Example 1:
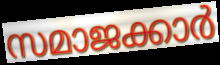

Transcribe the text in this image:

സമാജക്കാർ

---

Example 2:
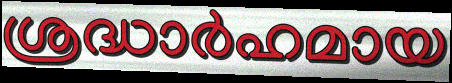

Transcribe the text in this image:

ശ്രദ്ധാർഹമായ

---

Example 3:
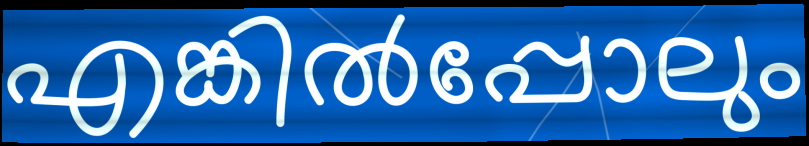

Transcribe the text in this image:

എങ്കിൽപ്പോലും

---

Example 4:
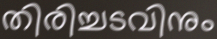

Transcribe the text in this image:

തിരിച്ചടവിനും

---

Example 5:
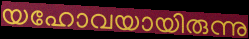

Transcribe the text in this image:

യഹോവയായിരുന്നു